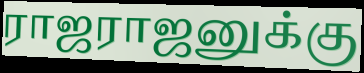
ராஜராஜனுக்கு